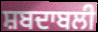
ਸ਼ਬਦਾਬਲੀ